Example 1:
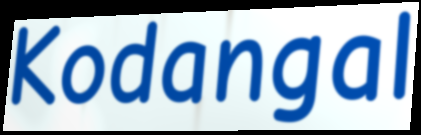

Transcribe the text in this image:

Kodangal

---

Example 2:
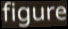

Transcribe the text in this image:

figure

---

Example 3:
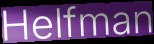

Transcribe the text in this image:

Helfman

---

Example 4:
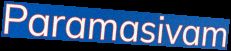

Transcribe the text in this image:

Paramasivam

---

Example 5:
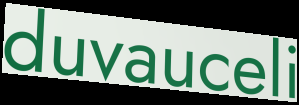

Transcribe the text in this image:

duvauceli